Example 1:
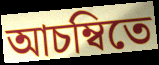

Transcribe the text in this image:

আচম্বিতে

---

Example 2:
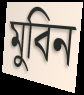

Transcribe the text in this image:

মুবিন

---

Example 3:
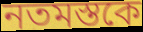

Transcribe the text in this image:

নতমস্তকে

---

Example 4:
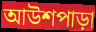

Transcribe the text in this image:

আউশপাড়া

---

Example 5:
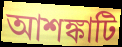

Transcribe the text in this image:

আশঙ্কাটি